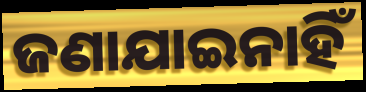
ଜଣାଯାଇନାହିଁ